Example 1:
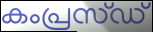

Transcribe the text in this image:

കംപ്രസ്ഡ്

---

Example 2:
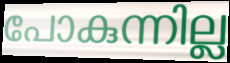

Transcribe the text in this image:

പോകുന്നില്ല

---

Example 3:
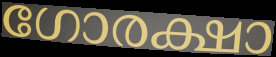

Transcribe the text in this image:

ഗോരക്ഷാ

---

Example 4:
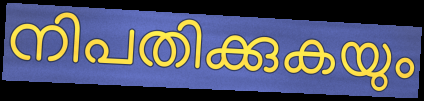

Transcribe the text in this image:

നിപതിക്കുകയും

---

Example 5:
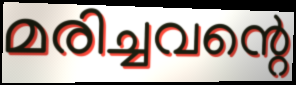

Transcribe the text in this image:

മരിച്ചവന്റെ